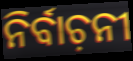
ନିର୍ବାଚ଼ନୀ